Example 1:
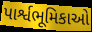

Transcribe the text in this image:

પાર્શ્વભૂમિકાઓ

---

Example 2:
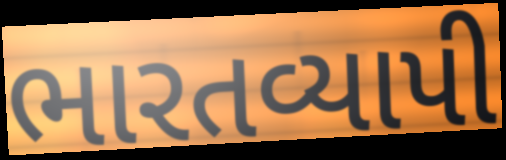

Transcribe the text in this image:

ભારતવ્યાપી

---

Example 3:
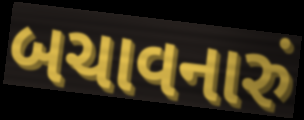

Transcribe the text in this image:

બચાવનારું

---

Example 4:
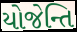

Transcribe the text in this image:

યોજેન્તિ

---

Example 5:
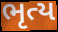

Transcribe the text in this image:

ભૃત્ય